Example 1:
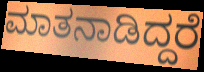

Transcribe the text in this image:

ಮಾತನಾಡಿದ್ದರೆ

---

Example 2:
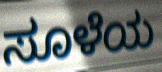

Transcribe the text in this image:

ಸೂಳೆಯ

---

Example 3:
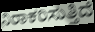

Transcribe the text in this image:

ನಿರಾಕರಿಸುತ್ತಿದೆ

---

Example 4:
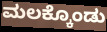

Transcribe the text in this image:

ಮಲಕ್ಕೊಂಡು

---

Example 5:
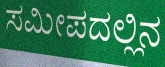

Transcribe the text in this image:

ಸಮೀಪದಲ್ಲಿನ